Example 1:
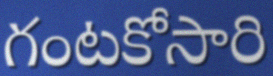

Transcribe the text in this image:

గంటకోసారి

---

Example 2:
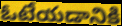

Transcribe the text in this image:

ఓటేయడానికి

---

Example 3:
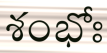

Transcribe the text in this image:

శంభోః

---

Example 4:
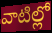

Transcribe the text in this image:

వాటిల్లో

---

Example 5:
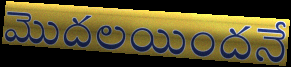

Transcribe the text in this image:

మొదలయిందనే